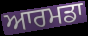
ਆਰਮਡਾ